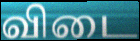
விடை